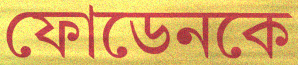
ফোডেনকে